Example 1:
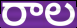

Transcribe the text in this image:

రాల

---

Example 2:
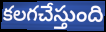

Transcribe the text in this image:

కలగచేస్తుంది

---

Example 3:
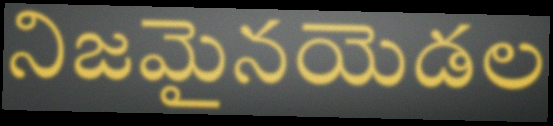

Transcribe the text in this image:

నిజమైనయెడల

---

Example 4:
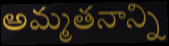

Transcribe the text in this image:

అమ్మతనాన్ని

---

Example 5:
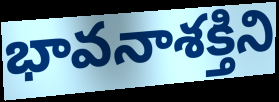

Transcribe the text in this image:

భావనాశక్తిని